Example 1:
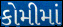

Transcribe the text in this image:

કોમીમાં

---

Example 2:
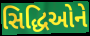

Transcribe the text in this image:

સિદ્ધિઓને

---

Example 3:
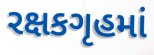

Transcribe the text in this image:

રક્ષકગૃહમાં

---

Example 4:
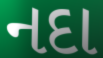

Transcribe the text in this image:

નદા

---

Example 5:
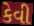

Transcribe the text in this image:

કેવી